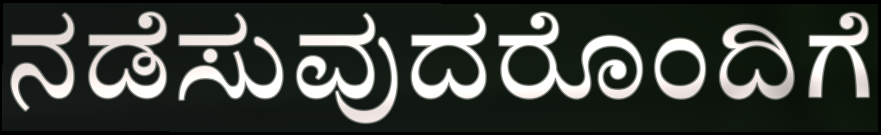
ನಡೆಸುವುದರೊಂದಿಗೆ